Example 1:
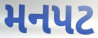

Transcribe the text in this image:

મનપટ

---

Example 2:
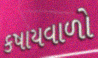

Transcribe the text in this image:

કષાયવાળો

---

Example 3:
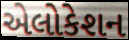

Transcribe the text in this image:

એલોકેશન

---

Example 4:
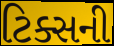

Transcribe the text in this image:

ટિક્સની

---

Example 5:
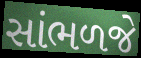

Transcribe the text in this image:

સાંભળજે